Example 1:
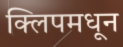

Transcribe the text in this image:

क्लिपमधून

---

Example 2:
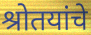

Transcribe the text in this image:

श्रोतयांचे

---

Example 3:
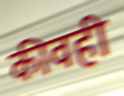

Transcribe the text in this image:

कीवही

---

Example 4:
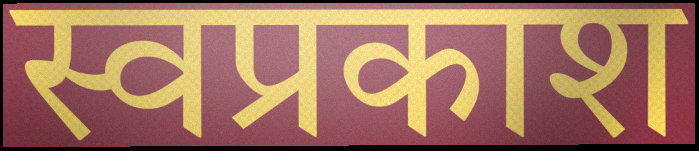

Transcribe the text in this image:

स्वप्रकाश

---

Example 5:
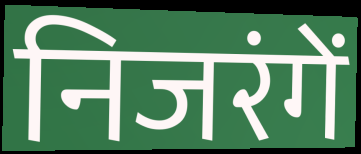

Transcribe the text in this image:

निजरंगें